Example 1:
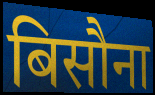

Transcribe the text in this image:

बिसौना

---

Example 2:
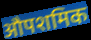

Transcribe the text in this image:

औपशमिक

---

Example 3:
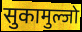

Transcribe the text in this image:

सुकामुल्जो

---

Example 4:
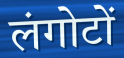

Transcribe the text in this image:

लंगोटों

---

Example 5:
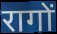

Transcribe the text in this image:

रागों